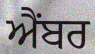
ਐਂਬਰ